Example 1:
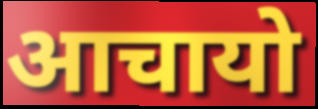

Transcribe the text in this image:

आचायो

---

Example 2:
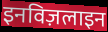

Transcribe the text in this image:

इनविज़लाइन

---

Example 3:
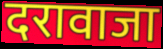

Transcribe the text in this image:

दरावाजा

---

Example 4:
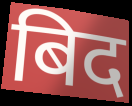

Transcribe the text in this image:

बिद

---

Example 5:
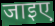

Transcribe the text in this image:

जाइए